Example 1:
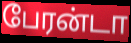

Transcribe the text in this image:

பேரன்டா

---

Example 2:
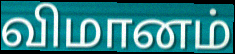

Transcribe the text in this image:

விமானம்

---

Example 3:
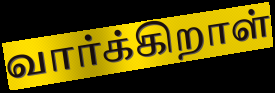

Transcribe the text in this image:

வார்க்கிறாள்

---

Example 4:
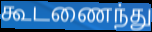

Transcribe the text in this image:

கூடணைந்து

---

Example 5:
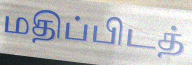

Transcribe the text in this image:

மதிப்பிடத்